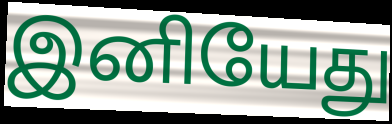
இனியேது